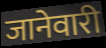
जानेवारी